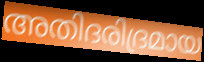
അതിദരിദ്രമായ